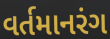
વર્તમાનરંગ